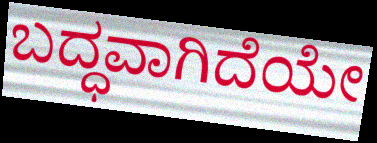
ಬದ್ಧವಾಗಿದೆಯೇ